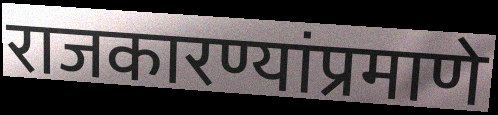
राजकारण्यांप्रमाणे